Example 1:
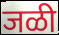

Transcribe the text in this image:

जळी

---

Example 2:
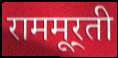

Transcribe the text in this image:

राममूर्ती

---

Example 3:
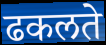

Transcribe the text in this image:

ढकलते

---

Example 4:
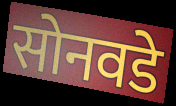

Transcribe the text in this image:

सोनवडे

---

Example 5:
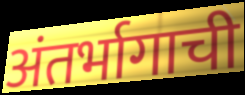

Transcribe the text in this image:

अंतर्भागाची